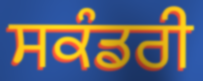
ਸਕੰਡਰੀ